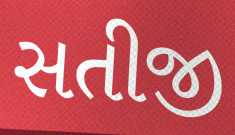
સતીજી